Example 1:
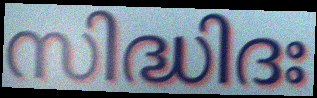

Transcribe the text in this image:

സിദ്ധിദഃ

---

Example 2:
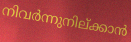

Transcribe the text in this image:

നിവർന്നുനില്ക്കാൻ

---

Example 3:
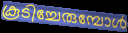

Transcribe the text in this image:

കൂടിച്ചേരുമ്പോൾ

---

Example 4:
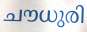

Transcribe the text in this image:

ചൗധുരി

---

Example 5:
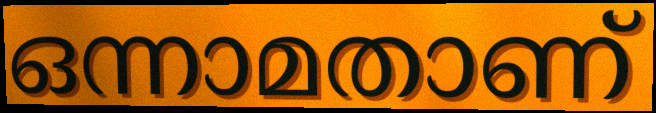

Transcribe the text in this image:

ഒന്നാമതാണ്